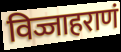
विज्जाहराणं